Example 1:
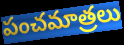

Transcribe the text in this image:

పంచమాత్రలు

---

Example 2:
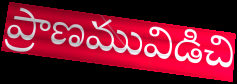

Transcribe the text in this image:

ప్రాణమువిడిచి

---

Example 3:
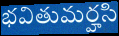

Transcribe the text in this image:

భవితుమర్హసి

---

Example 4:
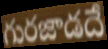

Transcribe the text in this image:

గురజాడదే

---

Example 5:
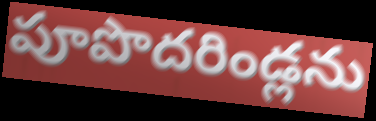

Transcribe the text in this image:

పూపొదరిండ్లను